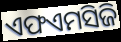
ଏଫଏମସିଜି